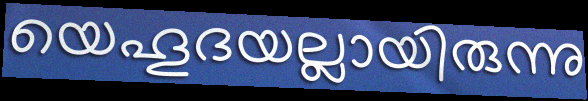
യെഹൂദയല്ലായിരുന്നു